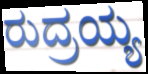
ರುದ್ರಯ್ಯ